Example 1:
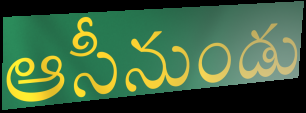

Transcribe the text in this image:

ఆసీనుండు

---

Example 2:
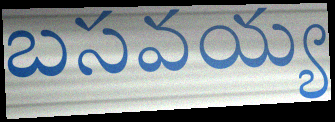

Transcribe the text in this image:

బసవయ్య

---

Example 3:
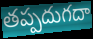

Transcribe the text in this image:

తప్పదుగదా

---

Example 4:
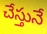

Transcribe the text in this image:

చేస్తునే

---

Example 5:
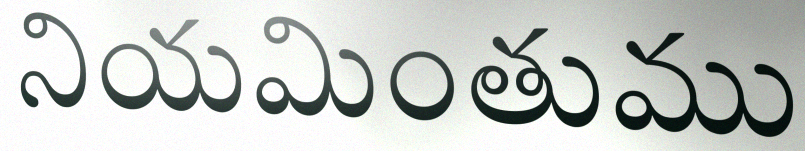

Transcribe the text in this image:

నియమింతుము